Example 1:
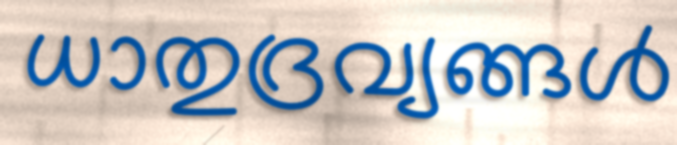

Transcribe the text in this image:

ധാതുദ്രവ്യങ്ങൾ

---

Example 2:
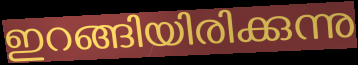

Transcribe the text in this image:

ഇറങ്ങിയിരിക്കുന്നു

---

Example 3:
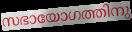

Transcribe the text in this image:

സഭായോഗത്തിനു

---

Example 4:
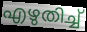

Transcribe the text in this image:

എഴുതിച്ച്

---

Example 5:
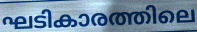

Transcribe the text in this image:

ഘടികാരത്തിലെ